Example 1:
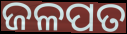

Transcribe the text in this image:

ଜଳପତ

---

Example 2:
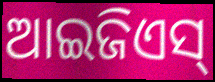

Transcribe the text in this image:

ଆଇଜିଏସ୍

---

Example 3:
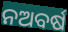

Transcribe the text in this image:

ନଅବର୍ଷ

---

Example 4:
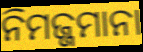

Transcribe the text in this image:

ନିମଜ୍ଜମାନା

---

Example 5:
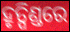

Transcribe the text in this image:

ହୃତ୍ପିଣ୍ଡରେ